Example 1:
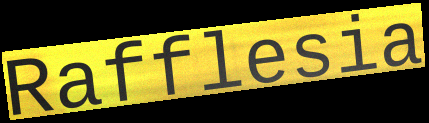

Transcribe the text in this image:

Rafflesia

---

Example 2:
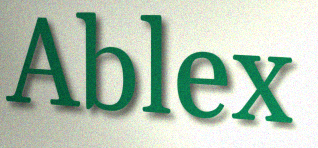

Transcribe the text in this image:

Ablex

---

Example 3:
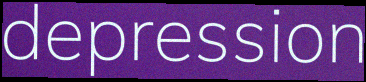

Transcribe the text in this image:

depression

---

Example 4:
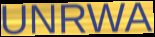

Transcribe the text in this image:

UNRWA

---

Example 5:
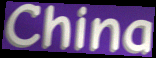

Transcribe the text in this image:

China